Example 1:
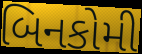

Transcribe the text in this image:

બિનકોમી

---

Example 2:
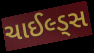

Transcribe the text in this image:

ચાઈલ્ડ્સ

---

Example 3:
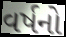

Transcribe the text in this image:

વર્ષનો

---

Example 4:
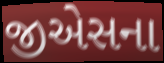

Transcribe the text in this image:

જીએસના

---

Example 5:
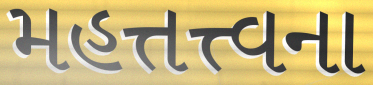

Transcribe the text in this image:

મહત્તત્ત્વના